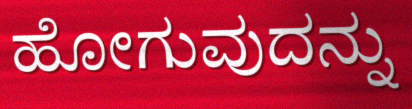
ಹೋಗುವುದನ್ನು